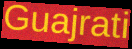
Guajrati